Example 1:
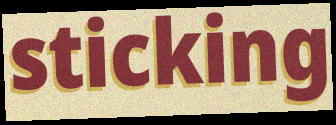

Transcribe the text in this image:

sticking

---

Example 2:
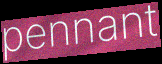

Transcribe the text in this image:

pennant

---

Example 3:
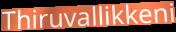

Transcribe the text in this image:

Thiruvallikkeni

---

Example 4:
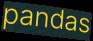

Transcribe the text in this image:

pandas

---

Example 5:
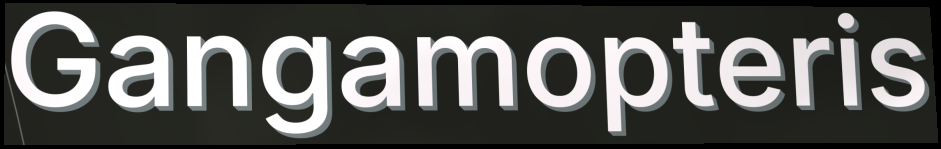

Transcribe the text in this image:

Gangamopteris